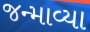
જન્માવ્યા